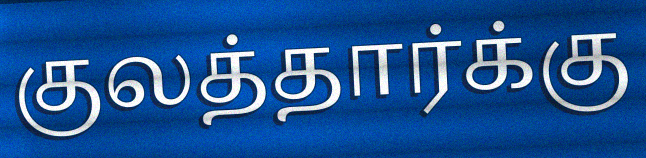
குலத்தார்க்கு